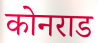
कोनराड